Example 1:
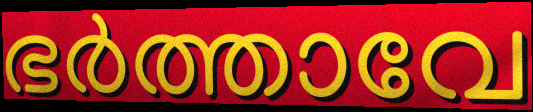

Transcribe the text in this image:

ഭർത്താവേ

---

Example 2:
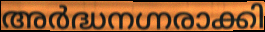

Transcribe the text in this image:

അർദ്ധനഗ്നരാക്കി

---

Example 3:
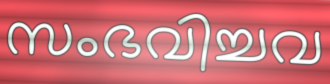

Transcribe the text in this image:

സംഭവിച്ചവ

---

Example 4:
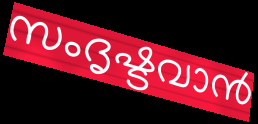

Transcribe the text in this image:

സംദൃഷ്ടവാൻ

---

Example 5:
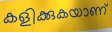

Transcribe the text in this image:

കളിക്കുകയാണ്